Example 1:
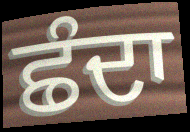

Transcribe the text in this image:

ਛੰਦਾ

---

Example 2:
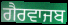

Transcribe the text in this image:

ਗੈਰਵਾਜਬ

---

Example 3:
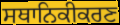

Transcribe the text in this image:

ਸਥਾਨਿਕੀਕਰਣ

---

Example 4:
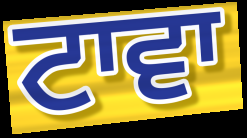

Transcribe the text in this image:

ਟਾਵਾ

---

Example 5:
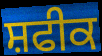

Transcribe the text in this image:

ਸ਼ਫੀਕ